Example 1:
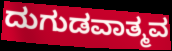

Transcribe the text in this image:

ದುಗುಡವಾತ್ಮವ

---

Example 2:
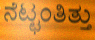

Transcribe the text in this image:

ನೆಟ್ಟಂತಿತ್ತು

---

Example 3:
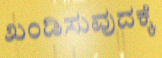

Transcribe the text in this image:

ಖಂಡಿಸುವುದಕ್ಕೆ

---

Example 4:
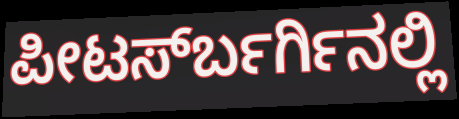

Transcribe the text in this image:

ಪೀಟರ್ಸ್‍ಬರ್ಗಿನಲ್ಲಿ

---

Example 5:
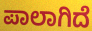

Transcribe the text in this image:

ಪಾಲಾಗಿದೆ